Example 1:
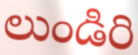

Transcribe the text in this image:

లుండిరి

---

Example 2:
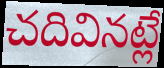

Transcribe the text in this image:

చదివినట్లే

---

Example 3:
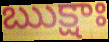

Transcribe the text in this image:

ఋక్షాః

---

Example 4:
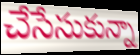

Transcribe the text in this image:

చేసేసుకున్నా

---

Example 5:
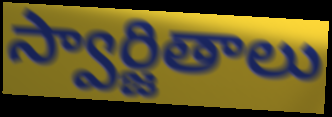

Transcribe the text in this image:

స్వార్జితాలు